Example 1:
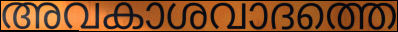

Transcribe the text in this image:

അവകാശവാദത്തെ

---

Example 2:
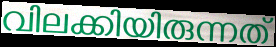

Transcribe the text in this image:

വിലക്കിയിരുന്നത്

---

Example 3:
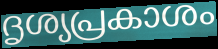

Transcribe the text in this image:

ദൃശ്യപ്രകാശം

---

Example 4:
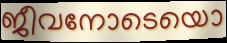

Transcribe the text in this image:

ജീവനോടെയൊ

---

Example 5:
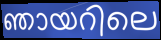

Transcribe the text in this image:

ഞായറിലെ